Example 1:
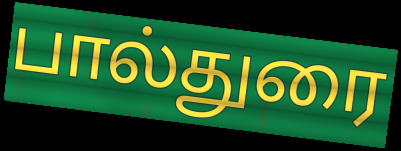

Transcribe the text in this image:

பால்துரை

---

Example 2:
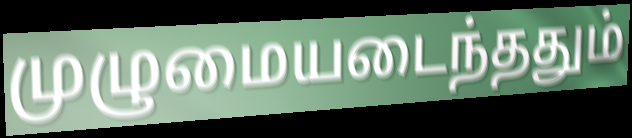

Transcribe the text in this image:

முழுமையடைந்ததும்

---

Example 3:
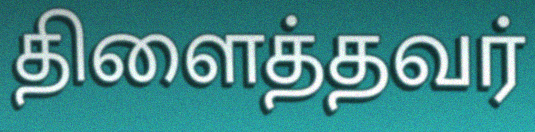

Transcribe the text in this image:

திளைத்தவர்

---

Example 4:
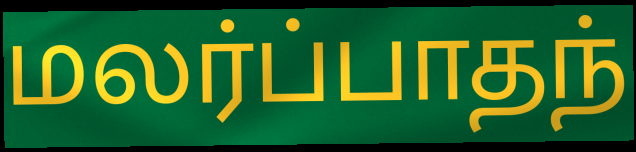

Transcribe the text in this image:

மலர்ப்பாதந்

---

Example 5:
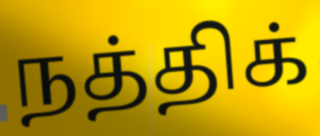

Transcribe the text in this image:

நத்திக்